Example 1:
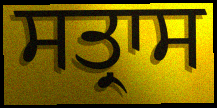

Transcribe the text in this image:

ਸਤ੍ਰਾਸ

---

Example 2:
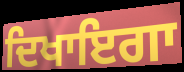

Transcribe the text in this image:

ਦਿਖਾਇਗਾ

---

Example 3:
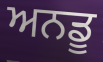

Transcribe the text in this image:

ਅਨਡੂ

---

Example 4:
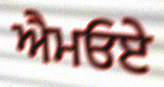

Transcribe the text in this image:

ਐਮਓਏ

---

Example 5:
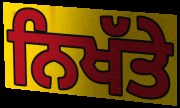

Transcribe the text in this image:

ਨਿਖੱਤੇ